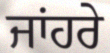
ਜਾਂਹਰੇ